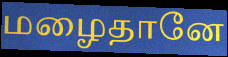
மழைதானே